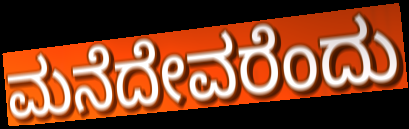
ಮನೆದೇವರೆಂದು